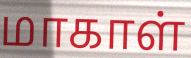
மாகாள்